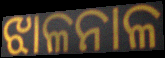
ଝାଳନାଳ